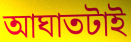
আঘাতটাই